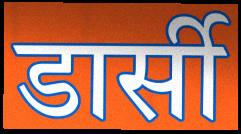
डार्सी